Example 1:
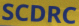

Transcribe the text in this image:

SCDRC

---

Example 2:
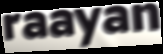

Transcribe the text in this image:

raayan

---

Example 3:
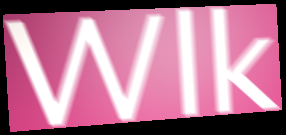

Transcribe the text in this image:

Wlk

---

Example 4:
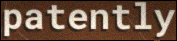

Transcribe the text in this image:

patently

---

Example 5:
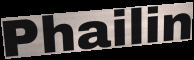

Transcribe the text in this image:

Phailin